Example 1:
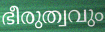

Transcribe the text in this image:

ഭീരുത്വവും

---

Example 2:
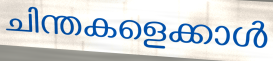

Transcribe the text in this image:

ചിന്തകളെക്കാൾ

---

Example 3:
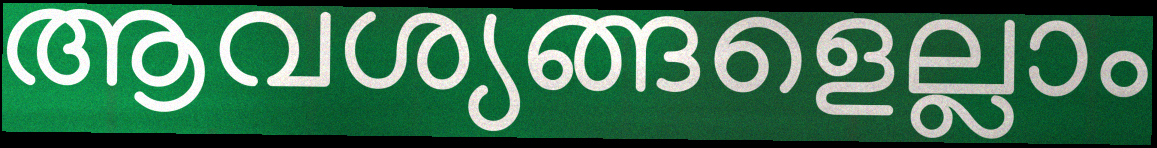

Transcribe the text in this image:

ആവശ്യങ്ങളെല്ലാം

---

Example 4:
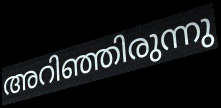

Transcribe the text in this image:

അറിഞ്ഞിരുന്നു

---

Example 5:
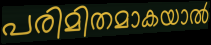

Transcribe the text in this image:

പരിമിതമാകയാൽ